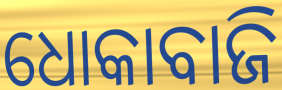
ଧୋକାବାଜି